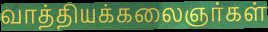
வாத்தியக்கலைஞர்கள்